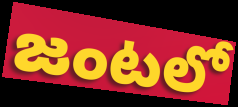
జంటలో